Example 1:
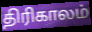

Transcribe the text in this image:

திரிகாலம்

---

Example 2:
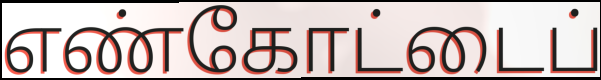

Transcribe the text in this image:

எண்கோட்டைப்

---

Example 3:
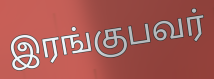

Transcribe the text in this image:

இரங்குபவர்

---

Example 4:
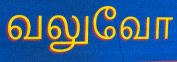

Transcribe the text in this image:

வலுவோ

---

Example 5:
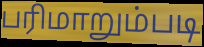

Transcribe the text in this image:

பரிமாறும்படி